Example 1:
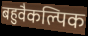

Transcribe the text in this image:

बहुवैकल्पिक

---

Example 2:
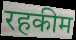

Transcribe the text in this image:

रहकीम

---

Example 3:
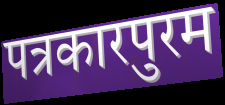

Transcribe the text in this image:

पत्रकारपुरम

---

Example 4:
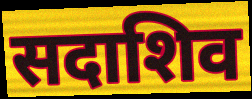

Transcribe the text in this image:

सदाशिव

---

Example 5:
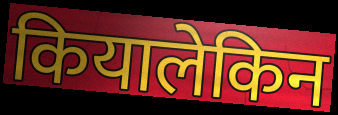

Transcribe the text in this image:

कियालेकिन